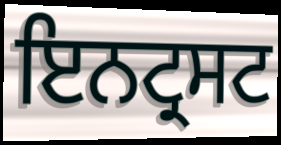
ਇਨਟ੍ਰਸਟ